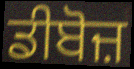
ਡੀਬੋਜ਼